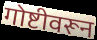
गोष्टीवरून